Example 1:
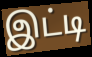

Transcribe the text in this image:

இட்டி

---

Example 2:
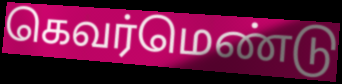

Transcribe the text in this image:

கெவர்மெண்டு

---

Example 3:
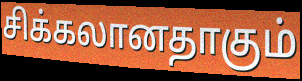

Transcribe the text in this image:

சிக்கலானதாகும்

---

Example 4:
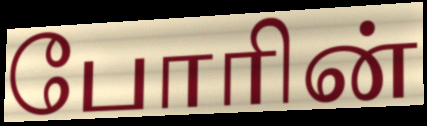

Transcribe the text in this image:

போரின்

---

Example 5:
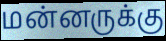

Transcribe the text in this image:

மன்னருக்கு